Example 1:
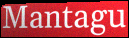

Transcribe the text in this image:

Mantagu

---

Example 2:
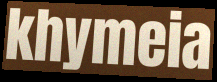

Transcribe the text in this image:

khymeia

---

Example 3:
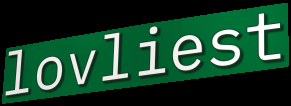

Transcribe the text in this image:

lovliest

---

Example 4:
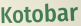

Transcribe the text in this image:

Kotobar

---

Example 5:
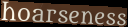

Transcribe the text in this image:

hoarseness